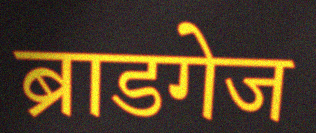
ब्राडगेज